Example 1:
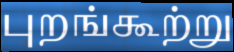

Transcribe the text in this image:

புறங்கூற்று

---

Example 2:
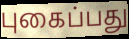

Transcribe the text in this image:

புகைப்பது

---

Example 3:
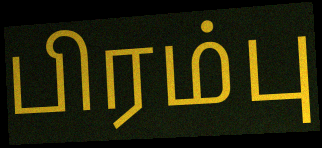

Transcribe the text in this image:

பிரம்பு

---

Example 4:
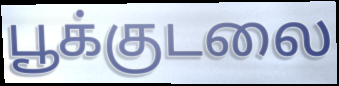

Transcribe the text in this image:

பூக்குடலை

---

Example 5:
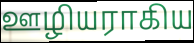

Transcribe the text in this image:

ஊழியராகிய